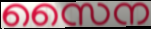
സൈന